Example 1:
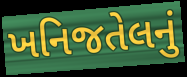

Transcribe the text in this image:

ખનિજતેલનું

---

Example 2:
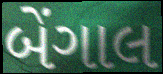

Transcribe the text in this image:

બેંગાલ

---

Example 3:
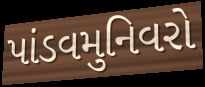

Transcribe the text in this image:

પાંડવમુનિવરો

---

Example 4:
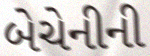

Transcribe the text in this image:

બેચેનીની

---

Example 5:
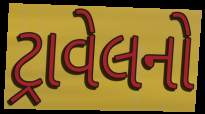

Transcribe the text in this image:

ટ્રાવેલનો